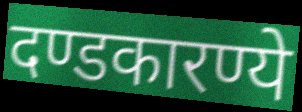
दण्डकारण्ये